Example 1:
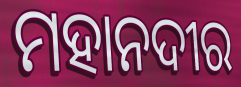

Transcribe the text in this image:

ମହାନଦୀର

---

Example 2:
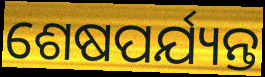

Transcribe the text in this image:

ଶେଷପର୍ଯ୍ୟନ୍ତ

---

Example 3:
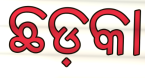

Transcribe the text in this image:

ଛଡ଼କା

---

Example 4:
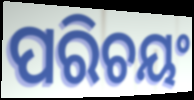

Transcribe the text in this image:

ପରିଚୟଂ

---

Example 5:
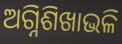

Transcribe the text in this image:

ଅଗ୍ନିଶିଖାଭଳି